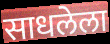
साधलेला